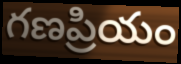
గణప్రియం